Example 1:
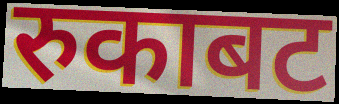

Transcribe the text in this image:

रुकाबट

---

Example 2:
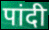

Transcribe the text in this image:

पांदी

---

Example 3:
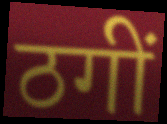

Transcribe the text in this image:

ठगीं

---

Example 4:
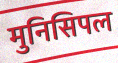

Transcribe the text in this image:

मुनिसिपल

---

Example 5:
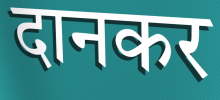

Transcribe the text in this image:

दानकर